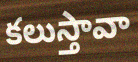
కలుస్తావా